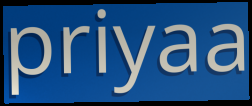
priyaa